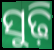
ସୁଢ଼ି